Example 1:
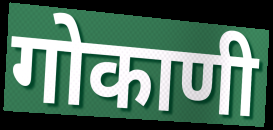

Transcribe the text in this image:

गोकाणी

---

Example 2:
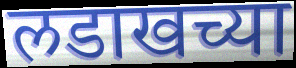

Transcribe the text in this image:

लडाखच्या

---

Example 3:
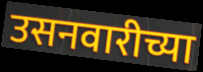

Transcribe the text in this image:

उसनवारीच्या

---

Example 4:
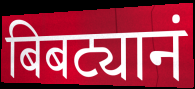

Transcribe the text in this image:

बिबट्यानं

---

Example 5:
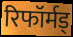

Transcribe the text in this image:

रिफॉर्मड्